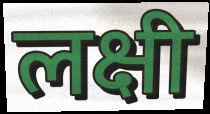
लक्षी